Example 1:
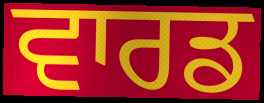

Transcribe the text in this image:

ਵਾਰਡ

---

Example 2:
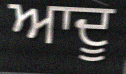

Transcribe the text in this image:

ਆਦੂ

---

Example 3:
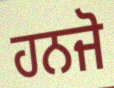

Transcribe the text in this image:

ਹਨਜੋ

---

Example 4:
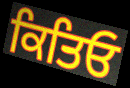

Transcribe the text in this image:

ਕਿਤਿਓ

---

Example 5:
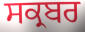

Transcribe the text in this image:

ਸਕ੍ਰਬਰ